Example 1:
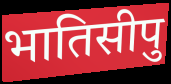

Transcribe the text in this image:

भातिसीपु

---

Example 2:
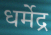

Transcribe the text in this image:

धर्मेद्र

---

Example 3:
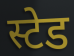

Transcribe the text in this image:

स्टेड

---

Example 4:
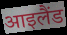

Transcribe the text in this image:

आइलैंड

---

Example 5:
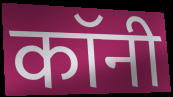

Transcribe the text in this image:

कॉनी